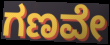
ಗಣವೇ